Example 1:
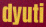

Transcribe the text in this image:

dyuti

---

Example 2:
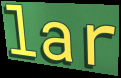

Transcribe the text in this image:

lar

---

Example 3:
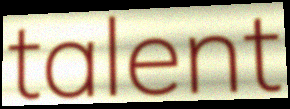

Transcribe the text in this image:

talent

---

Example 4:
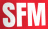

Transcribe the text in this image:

SFM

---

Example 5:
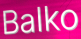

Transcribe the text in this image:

Balko